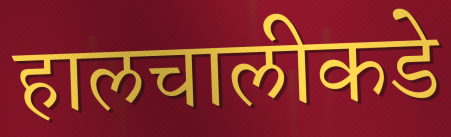
हालचालीकडे